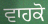
ਵਾਹਕੋ